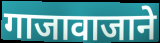
गाजावाजाने